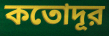
কতোদূর